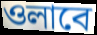
ওলাবে